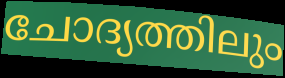
ചോദ്യത്തിലും